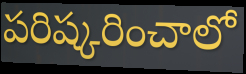
పరిష్కరించాలో